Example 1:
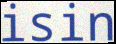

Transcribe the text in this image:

isin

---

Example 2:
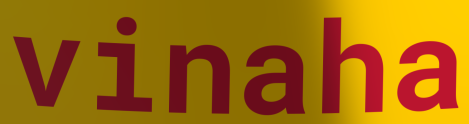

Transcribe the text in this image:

vinaha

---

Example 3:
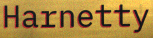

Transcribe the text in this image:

Harnetty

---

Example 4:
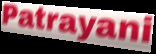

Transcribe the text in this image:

Patrayani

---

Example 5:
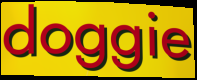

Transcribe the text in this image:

doggie